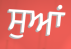
ਸੁਆਂ